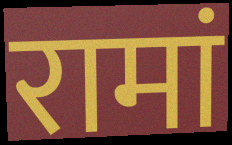
रामां